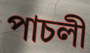
পাচলী